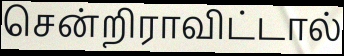
சென்றிராவிட்டால்